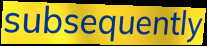
subsequently